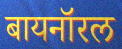
बायनॉरल